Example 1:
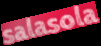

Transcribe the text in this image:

salasola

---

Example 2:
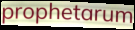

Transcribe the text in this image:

prophetarum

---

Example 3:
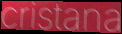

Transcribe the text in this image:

cristana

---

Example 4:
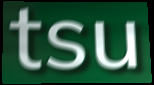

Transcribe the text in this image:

tsu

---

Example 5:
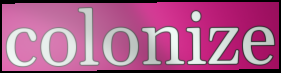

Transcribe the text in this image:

colonize